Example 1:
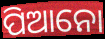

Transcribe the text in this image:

ପିଆନୋ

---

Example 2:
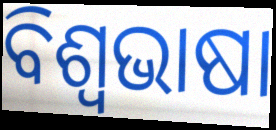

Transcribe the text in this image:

ବିଶ୍ୱଭାଷା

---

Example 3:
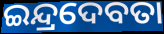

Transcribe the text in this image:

ଇନ୍ଦ୍ରଦେବତା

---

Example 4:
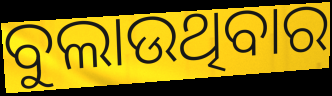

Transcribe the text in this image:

ବୁଲାଉଥିବାର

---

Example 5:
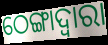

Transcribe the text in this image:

ଠେଙ୍ଗାଦ୍ୱାରା